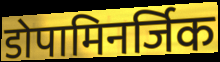
डोपामिनर्जिक